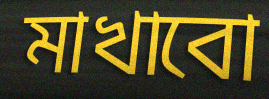
মাখাবো